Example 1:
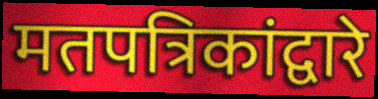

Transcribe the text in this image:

मतपत्रिकांद्वारे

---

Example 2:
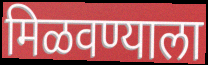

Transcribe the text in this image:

मिळवण्याला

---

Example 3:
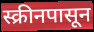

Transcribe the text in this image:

स्क्रीनपासून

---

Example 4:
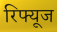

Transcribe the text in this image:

रिफ्यूज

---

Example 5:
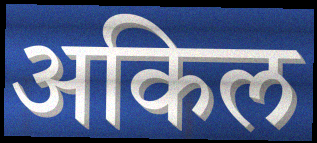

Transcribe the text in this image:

अकिल